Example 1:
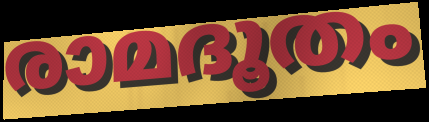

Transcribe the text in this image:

രാമദൂതം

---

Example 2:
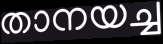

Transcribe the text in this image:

താനയച്ച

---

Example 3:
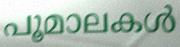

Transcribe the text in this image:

പൂമാലകൾ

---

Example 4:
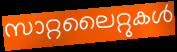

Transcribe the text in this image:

സാറ്റലൈറ്റുകൾ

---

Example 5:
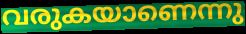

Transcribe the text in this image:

വരുകയാണെന്നു